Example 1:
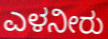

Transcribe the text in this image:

ಎಳನೀರು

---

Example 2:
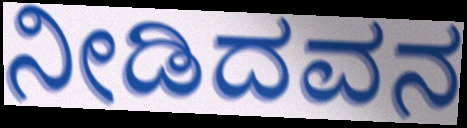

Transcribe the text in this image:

ನೀಡಿದವನ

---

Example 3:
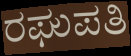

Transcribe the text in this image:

ರಘುಪತಿ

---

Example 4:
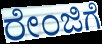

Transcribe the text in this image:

ರೇಂಜಿಗೆ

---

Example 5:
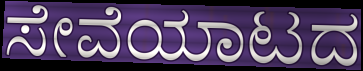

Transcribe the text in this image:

ಸೇವೆಯಾಟದ